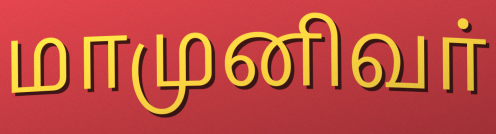
மாமுனிவர்